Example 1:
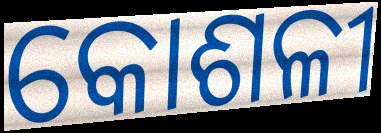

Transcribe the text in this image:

କୋଶଳୀ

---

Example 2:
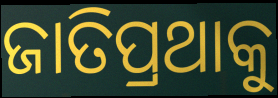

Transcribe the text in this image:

ଜାତିପ୍ରଥାକୁ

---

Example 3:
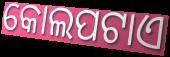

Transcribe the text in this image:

କୋଲପଟାଏ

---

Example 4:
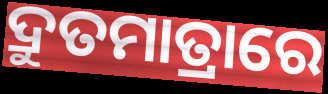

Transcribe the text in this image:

ଦ୍ରୁତମାତ୍ରାରେ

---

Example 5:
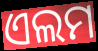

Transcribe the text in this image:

ଏଲମ